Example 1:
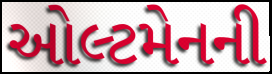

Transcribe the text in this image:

ઓલ્ટમેનની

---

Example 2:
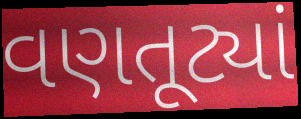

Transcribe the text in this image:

વણતૂટ્યાં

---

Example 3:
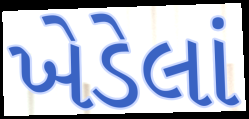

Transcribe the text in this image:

ખેડેલાં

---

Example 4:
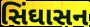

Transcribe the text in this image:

સિંઘાસન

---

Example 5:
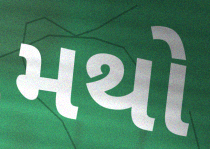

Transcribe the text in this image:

મથો